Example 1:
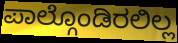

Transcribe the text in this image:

ಪಾಲ್ಗೊಂಡಿರಲಿಲ್ಲ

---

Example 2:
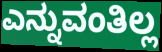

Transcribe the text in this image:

ಎನ್ನುವಂತಿಲ್ಲ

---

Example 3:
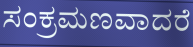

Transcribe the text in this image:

ಸಂಕ್ರಮಣವಾದರೆ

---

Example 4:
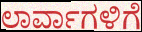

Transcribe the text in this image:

ಲಾರ್ವಾಗಳಿಗೆ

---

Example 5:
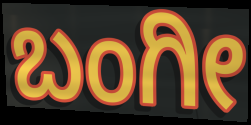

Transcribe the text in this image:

ಬಂಗೀ